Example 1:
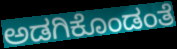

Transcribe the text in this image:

ಅಡಗಿಕೊಂಡಂತೆ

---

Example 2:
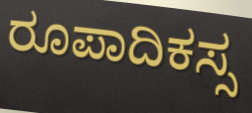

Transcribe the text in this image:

ರೂಪಾದಿಕಸ್ಸ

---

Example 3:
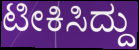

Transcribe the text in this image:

ಟೀಕಿಸಿದ್ದು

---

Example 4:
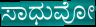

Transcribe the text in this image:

ಸಾಧುವೋ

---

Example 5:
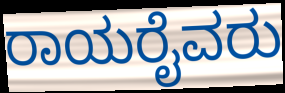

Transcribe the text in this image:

ರಾಯರೈವರು